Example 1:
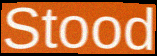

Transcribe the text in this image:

Stood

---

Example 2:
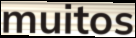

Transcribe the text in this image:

muitos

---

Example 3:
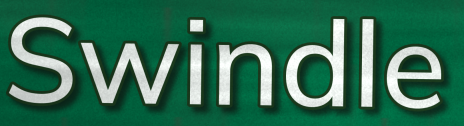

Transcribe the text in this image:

Swindle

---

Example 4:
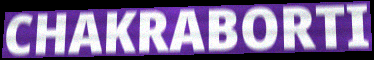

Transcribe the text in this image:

CHAKRABORTI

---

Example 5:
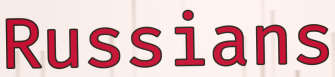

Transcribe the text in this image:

Russians